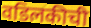
वडिलकीची